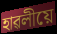
হাৱলীয়ে